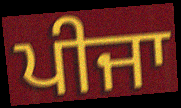
ਪੀਜਾ